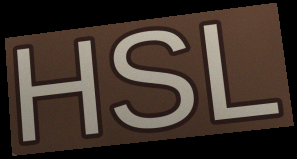
HSL